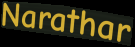
Narathar